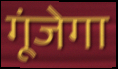
गूंजेगा